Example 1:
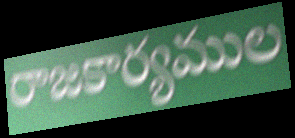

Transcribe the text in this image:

రాజకార్యముల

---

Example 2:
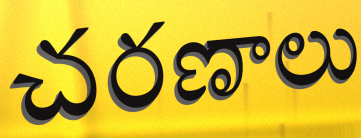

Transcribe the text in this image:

చరణాలు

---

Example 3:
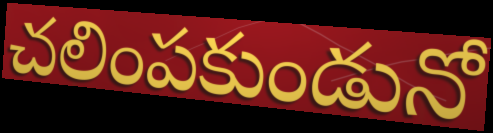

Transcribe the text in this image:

చలింపకుండునో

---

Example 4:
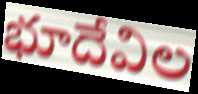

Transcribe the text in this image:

భూదేవిల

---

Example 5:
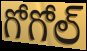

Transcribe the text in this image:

గోగోల్